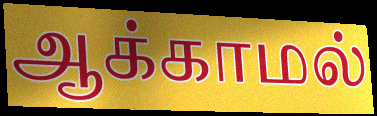
ஆக்காமல்